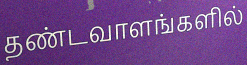
தண்டவாளங்களில்